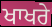
ਖਾਖਰੇ